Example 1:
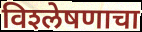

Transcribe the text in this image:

विश्‍लेषणाचा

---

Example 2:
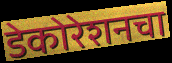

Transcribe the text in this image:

डेकोरेशनचा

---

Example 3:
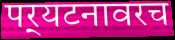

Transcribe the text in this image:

पर्यटनावरच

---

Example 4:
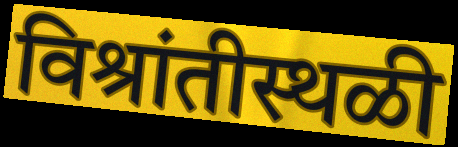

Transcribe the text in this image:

विश्रांतीस्थळी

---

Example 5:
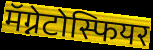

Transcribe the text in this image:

मॅग्नेटोस्फियर